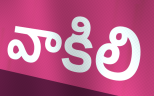
వాకిలి